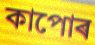
কাপোৰ